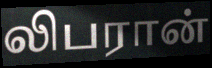
லிபரான்